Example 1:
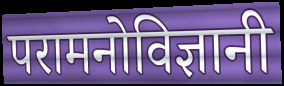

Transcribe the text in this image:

परामनोविज्ञानी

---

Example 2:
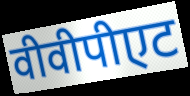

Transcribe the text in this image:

वीवीपीएट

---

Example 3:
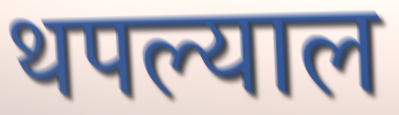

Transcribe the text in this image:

थपल्याल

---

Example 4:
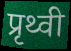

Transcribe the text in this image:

प्रृथ्वी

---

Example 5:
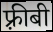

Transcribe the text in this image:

फ़्रीबी